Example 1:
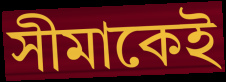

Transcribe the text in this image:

সীমাকেই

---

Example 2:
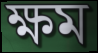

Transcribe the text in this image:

ক্ষম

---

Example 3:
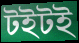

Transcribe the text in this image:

টইটই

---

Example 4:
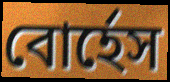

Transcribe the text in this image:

বোর্হেস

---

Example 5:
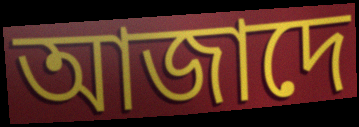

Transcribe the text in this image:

আজাদে